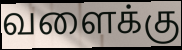
வளைக்கு